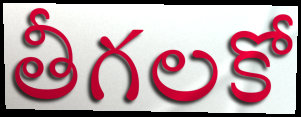
తీగలకో